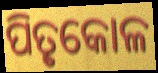
ପିତୃକୋଳ